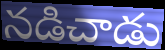
నడిచాడు